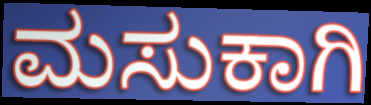
ಮಸುಕಾಗಿ